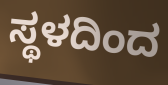
ಸ್ಥಳದಿಂದ